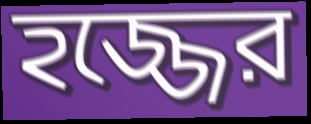
হজ্জের